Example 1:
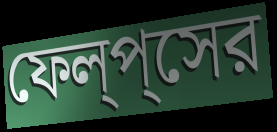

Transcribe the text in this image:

ফেল্‌প্‌সের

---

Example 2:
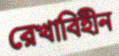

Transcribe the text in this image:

রেখাবিহীন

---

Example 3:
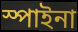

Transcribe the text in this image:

স্পাইনা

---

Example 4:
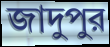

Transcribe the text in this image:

জাদুপুর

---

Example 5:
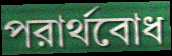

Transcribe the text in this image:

পরার্থবোধ